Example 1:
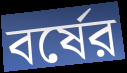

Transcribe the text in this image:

বর্ষের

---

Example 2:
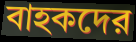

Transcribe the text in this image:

বাহকদের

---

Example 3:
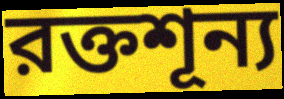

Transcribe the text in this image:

রক্তশূন্য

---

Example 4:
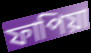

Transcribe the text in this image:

ফাপিয়া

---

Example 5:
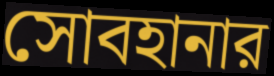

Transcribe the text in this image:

সোবহানার